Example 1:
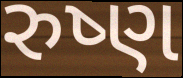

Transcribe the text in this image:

રુષ્ણ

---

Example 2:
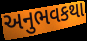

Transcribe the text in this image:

અનુભવકથા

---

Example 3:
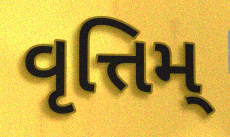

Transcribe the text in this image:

વૃત્તિમ્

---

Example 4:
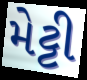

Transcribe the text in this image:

મેટ્ટી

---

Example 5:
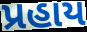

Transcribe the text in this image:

પ્રહાય